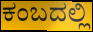
ಕಂಬದಲ್ಲಿ